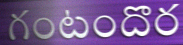
గంటందొర